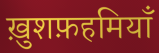
ख़ुशफ़हमियाँ